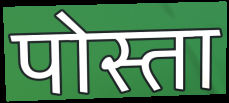
पोस्ता